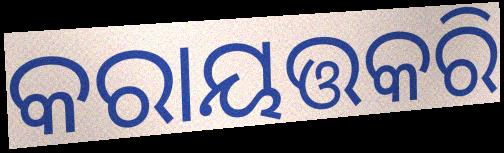
କରାୟତ୍ତକରି